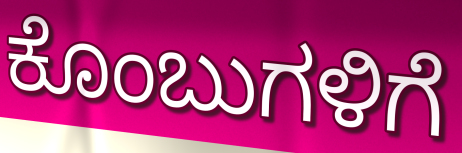
ಕೊಂಬುಗಳಿಗೆ